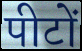
पीटों